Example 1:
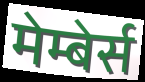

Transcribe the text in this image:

मेम्बेर्स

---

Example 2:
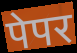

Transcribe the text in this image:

पेपर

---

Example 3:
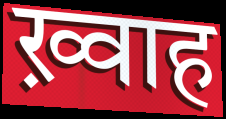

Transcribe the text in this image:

ख़्वाह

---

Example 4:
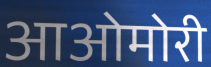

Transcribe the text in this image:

आओमोरी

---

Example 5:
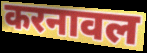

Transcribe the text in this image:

करनावल